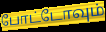
போட்டோவும்